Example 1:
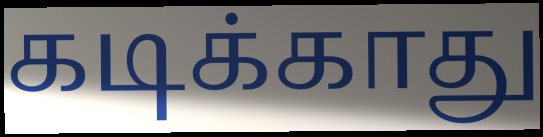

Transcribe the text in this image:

கடிக்காது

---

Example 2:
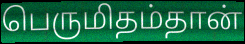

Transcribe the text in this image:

பெருமிதம்தான்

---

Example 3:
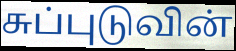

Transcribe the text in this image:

சுப்புடுவின்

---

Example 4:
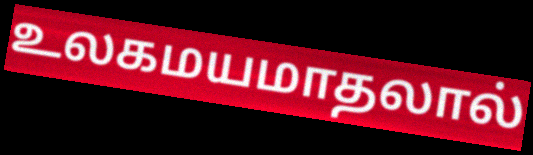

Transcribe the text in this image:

உலகமயமாதலால்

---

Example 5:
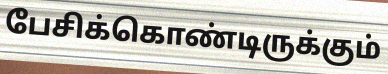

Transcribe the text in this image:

பேசிக்கொண்டிருக்கும்